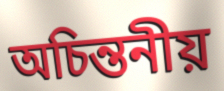
অচিন্তনীয়